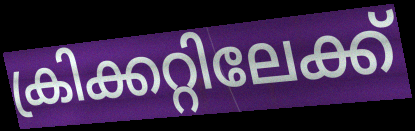
ക്രിക്കറ്റിലേക്ക്